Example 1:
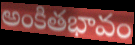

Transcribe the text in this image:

అంకితభావం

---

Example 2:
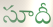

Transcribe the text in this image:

సూదీ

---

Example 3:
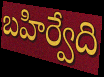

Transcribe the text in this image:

బహిర్వేది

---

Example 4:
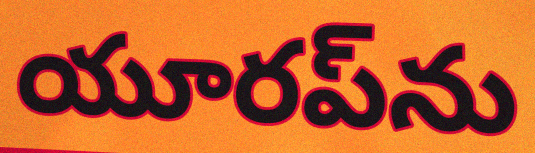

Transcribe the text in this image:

యూరప్‌ను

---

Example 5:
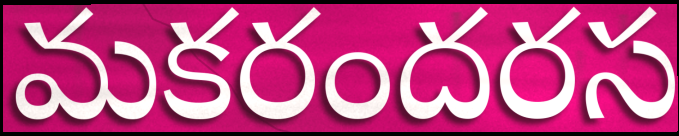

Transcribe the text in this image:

మకరందరస